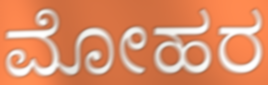
ಮೋಹರ